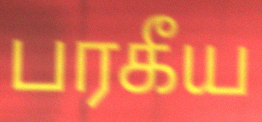
பரகீய